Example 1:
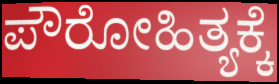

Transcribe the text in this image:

ಪೌರೋಹಿತ್ಯಕ್ಕೆ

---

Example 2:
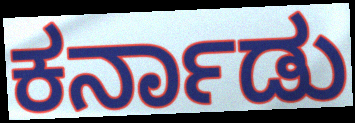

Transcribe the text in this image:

ಕರ್ನಾಡು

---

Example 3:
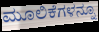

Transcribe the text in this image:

ಮೂಲಿಕೆಗಳನ್ನೂ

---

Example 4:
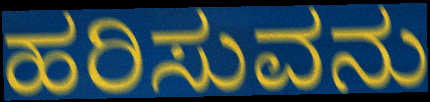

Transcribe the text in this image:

ಹರಿಸುವನು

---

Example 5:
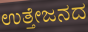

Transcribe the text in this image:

ಉತ್ತೇಜನದ